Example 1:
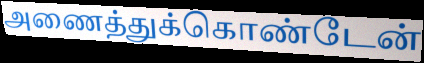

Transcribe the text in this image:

அணைத்துக்கொண்டேன்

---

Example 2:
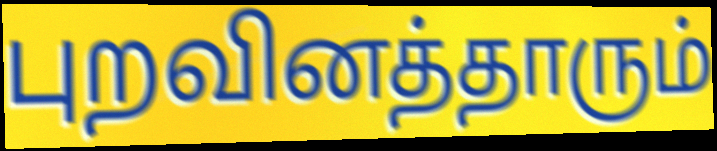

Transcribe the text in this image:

புறவினத்தாரும்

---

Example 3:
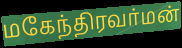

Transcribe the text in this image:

மகேந்திரவர்மன்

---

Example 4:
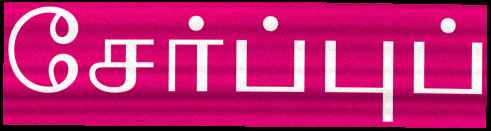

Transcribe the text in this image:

சேர்ப்புப்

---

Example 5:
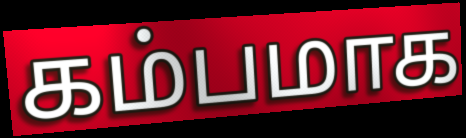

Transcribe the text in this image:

கம்பமாக